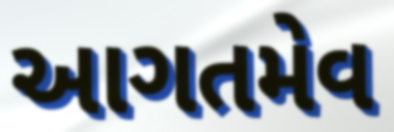
આગતમેવ